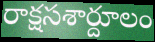
రాక్షసశార్దూలం